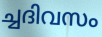
ച്ചദിവസം